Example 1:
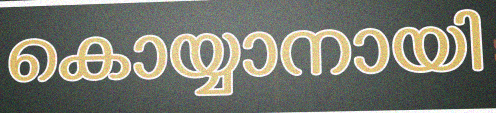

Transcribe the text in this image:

കൊയ്യാനായി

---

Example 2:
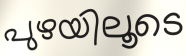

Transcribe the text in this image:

പുഴയിലൂടെ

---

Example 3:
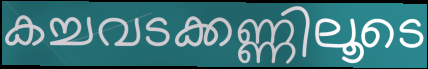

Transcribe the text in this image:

കച്ചവടക്കണ്ണിലൂടെ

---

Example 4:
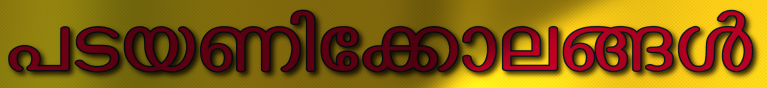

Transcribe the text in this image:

പടയണിക്കോലങ്ങൾ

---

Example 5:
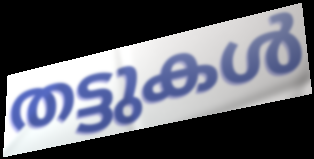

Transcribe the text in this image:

തട്ടുകൾ